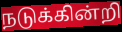
நடுக்கின்றி